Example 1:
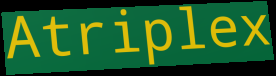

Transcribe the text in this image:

Atriplex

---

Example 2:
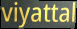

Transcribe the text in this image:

viyattal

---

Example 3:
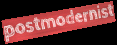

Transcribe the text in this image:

postmodernist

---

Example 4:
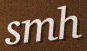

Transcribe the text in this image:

smh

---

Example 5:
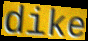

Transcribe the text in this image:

dike